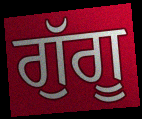
ਗੁੱਗੂ